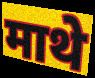
माथे